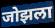
जोझला